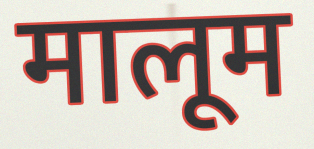
मालूम